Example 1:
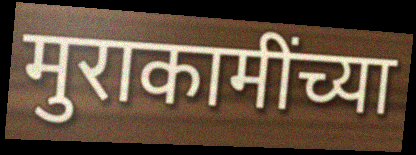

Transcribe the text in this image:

मुराकामींच्या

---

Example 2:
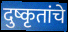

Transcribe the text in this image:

दुष्कृतांचे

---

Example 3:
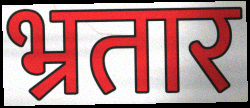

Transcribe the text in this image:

भ्रतार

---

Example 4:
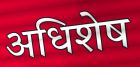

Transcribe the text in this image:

अधिशेष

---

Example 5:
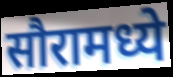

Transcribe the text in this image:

सौरामध्ये